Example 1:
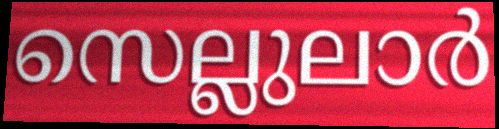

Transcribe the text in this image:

സെല്ലുലാർ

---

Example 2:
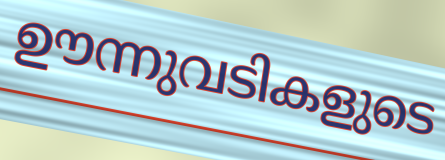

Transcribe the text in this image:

ഊന്നുവടികളുടെ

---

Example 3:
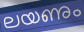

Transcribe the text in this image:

ലയണും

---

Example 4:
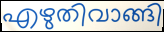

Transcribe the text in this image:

എഴുതിവാങ്ങി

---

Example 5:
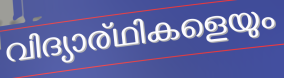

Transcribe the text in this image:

വിദ്യാര്ഥികളെയും